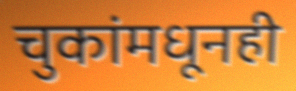
चुकांमधूनही